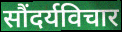
सौंदर्यविचार